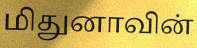
மிதுனாவின்